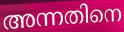
അന്നതിനെ